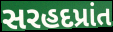
સરહદપ્રાંત